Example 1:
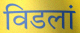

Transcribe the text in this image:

विडलां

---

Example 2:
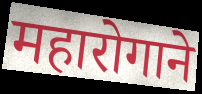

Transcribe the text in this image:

महारोगाने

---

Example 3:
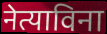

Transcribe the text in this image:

नेत्याविना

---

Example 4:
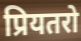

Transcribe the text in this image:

प्रियतरो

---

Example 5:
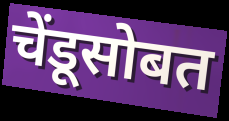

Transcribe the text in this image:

चेंडूसोबत